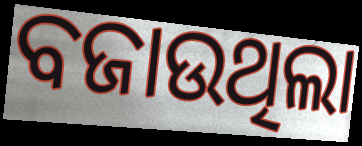
ବଜାଉଥିଲା